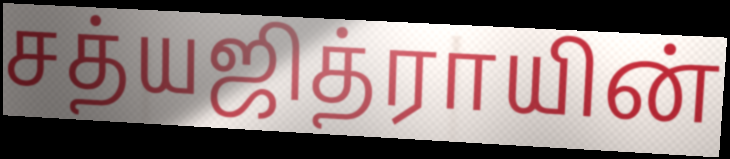
சத்யஜித்ராயின்